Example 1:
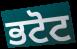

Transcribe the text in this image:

ਭਟੋਟ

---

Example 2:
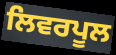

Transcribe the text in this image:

ਲਿਵਰਪੂਲ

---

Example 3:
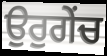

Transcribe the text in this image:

ਉਰੁਗੇਂਚ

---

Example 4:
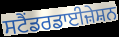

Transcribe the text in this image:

ਸਟੈਂਡਰਡਾਈਜ਼ੇਸ਼ਨ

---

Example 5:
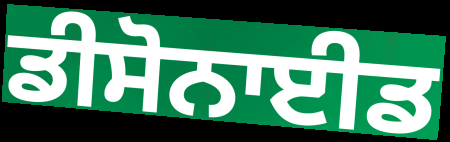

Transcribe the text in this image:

ਡੀਸੋਨਾਈਡ